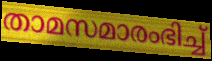
താമസമാരംഭിച്ച്